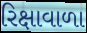
રિક્ષાવાળા